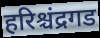
हरिश्चंद्रगड